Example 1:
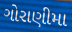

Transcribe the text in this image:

ગોરાણીમા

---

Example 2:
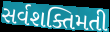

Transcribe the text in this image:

સર્વશક્તિમતી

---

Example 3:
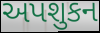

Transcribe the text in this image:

અપશુકન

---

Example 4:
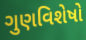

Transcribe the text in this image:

ગુણવિશેષો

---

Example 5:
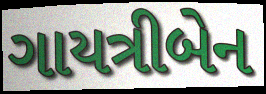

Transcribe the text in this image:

ગાયત્રીબેન